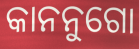
କାନନୁଗୋ